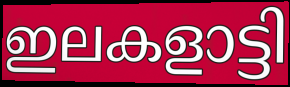
ഇലകളാട്ടി